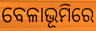
ବେଳାଭୂମିରେ